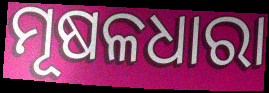
ମୂଷଳଧାରା